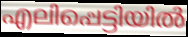
എലിപ്പെട്ടിയിൽ